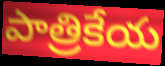
పాత్రికేయ